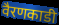
वैरणकाडी